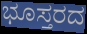
ಭೂಸ್ತರದ